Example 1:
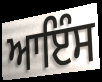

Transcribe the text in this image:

ਆਇੰਸ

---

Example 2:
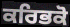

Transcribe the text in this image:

ਕਰਿਭਕੋ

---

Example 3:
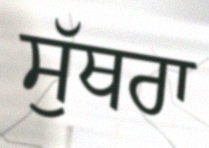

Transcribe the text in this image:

ਸੁੱਥਰਾ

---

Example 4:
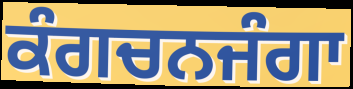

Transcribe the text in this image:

ਕੰਗਚਨਜੰਗਾ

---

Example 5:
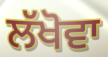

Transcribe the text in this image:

ਲੱਖੋਵਾ